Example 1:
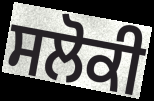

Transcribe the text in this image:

ਸਲੋਕੀ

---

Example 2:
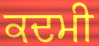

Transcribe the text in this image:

ਕਦਮੀ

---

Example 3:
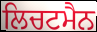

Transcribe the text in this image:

ਲਿਚਟਮੈਨ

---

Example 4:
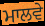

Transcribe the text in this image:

ਮਾਲਵੇ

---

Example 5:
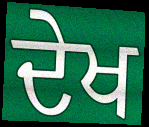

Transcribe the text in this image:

ਦੇਖ